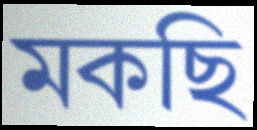
মকছি